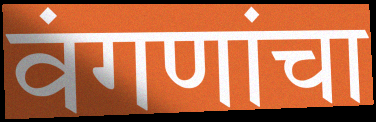
वंगणांचा